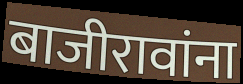
बाजीरावांना